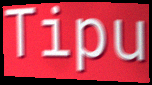
Tipu